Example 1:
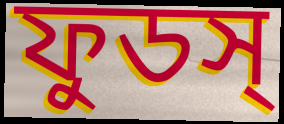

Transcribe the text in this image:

ফুডস্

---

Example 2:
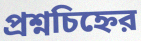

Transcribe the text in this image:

প্রশ্নচিহ্নের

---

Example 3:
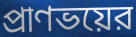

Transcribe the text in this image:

প্রাণভয়ের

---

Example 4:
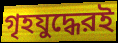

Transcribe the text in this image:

গৃহযুদ্ধেরই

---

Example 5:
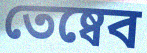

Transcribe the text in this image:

তেষ্বেব